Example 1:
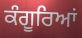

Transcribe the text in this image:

ਕੰਗੂਰਿਆਂ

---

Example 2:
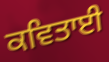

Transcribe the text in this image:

ਕਵਿਤਾਈ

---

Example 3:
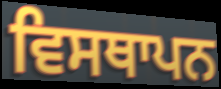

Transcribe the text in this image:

ਵਿਸਥਾਪਨ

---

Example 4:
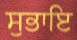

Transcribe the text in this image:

ਸੁਭਾਇ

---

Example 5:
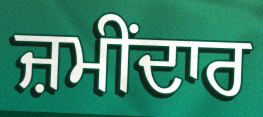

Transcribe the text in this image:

ਜ਼ਮੀਂਦਾਰ